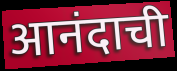
आनंदाची